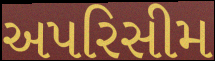
અપરિસીમ